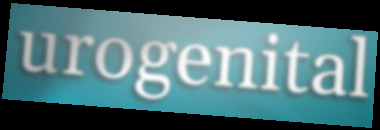
urogenital